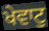
ਖੇਵਾਟੁ